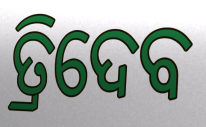
ତ୍ରିଦେବ